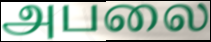
அபலை